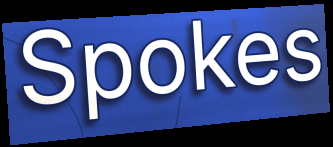
Spokes